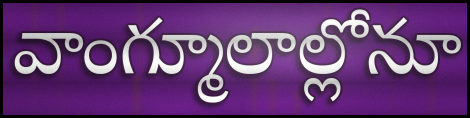
వాంగ్మూలాల్లోనూ